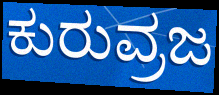
ಕುರುವ್ರಜ